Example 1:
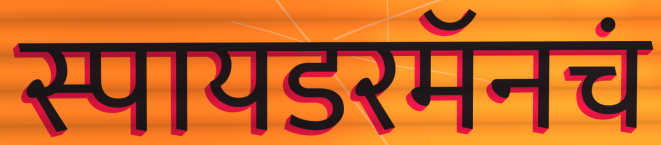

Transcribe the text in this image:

स्पायडरमॅनचं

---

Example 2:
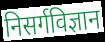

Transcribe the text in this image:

निसर्गविज्ञान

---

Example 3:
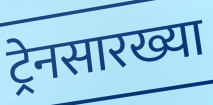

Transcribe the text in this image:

ट्रेनसारख्या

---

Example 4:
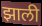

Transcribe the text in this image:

झाली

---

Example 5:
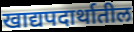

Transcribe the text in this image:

खाद्यपदार्थातील